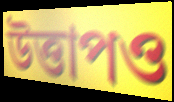
উত্তাপও